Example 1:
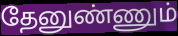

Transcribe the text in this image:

தேனுண்ணும்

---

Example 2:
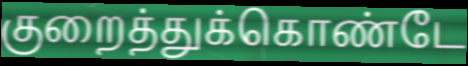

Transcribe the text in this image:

குறைத்துக்கொண்டே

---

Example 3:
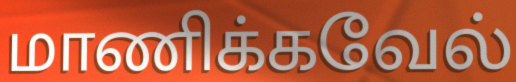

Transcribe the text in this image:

மாணிக்கவேல்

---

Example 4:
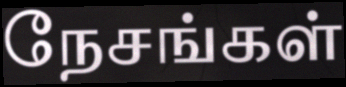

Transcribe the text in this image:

நேசங்கள்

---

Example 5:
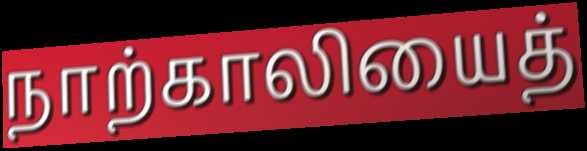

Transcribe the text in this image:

நாற்காலியைத்